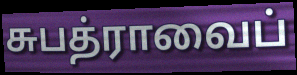
சுபத்ராவைப்